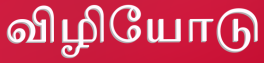
விழியோடு